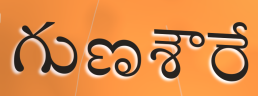
గుణశౌరే